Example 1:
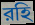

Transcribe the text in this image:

রহি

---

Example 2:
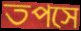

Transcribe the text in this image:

তপসে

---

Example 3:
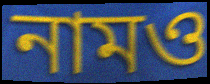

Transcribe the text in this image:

নামও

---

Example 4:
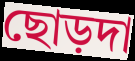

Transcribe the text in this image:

ছোড়দা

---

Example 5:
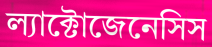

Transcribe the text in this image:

ল্যাক্টোজেনেসিস